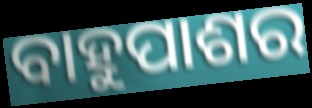
ବାହୁପାଶର